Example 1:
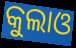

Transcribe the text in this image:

କୁଲାଓ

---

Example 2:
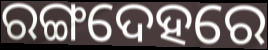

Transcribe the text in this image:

ରଙ୍ଗଦେହରେ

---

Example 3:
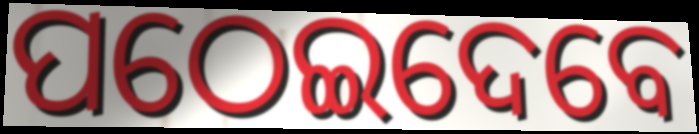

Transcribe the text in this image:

ପଠେଇଦେବେ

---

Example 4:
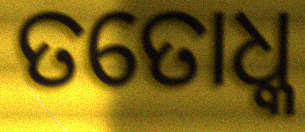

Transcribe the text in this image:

ତତୋଧ୍କ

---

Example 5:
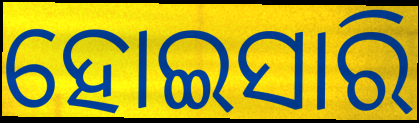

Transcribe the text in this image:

ହୋଇସାରି